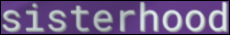
sisterhood